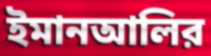
ইমানআলির